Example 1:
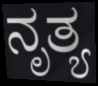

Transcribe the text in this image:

ನೃತ್ಯ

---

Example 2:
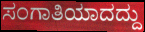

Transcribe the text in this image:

ಸಂಗಾತಿಯಾದದ್ದು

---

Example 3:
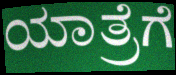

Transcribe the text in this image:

ಯಾತ್ರೆಗೆ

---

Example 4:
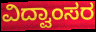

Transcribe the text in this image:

ವಿದ್ವಾಂಸರ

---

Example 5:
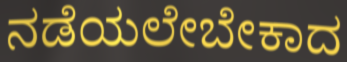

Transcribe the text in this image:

ನಡೆಯಲೇಬೇಕಾದ